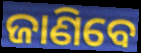
ଜାଣିବେ